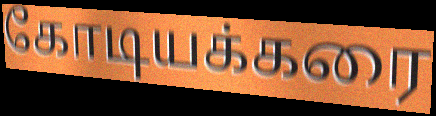
கோடியக்கரை